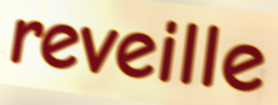
reveille